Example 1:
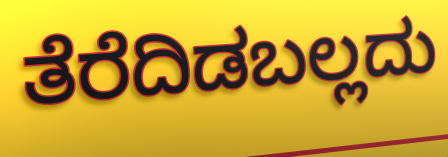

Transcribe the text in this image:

ತೆರೆದಿಡಬಲ್ಲದು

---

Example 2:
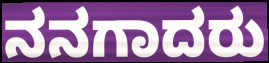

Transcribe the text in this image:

ನನಗಾದರು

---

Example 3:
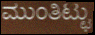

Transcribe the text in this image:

ಮುಂತಿಟ್ಟು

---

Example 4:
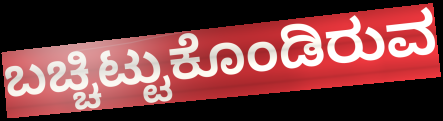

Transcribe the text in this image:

ಬಚ್ಚಿಟ್ಟುಕೊಂಡಿರುವ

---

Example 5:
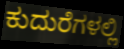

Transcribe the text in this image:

ಕುದುರೆಗಳಲ್ಲಿ